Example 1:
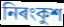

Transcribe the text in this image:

নিৰংকুশ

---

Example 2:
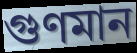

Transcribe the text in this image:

গুণমান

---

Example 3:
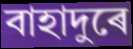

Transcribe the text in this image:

বাহাদুৰে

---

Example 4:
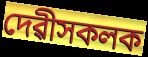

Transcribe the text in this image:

দেৱীসকলক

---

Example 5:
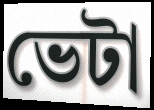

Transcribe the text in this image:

ভেটা